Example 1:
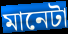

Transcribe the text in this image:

মানেটা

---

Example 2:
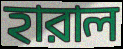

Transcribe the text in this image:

হারাল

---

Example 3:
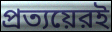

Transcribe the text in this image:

প্রত্যয়েরই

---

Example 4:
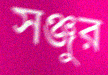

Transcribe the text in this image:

সঞ্জুর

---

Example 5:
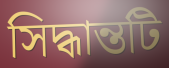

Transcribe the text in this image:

সিদ্ধান্তটি